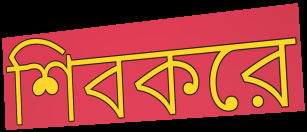
শিবকরে